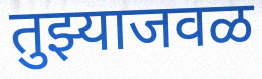
तुझ्याजवळ